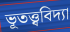
ভূতত্ত্ববিদ্যা